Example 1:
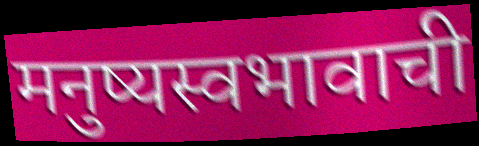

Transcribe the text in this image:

मनुष्यस्वभावाची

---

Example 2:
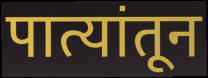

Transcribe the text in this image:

पात्यांतून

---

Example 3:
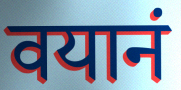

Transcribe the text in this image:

वयानं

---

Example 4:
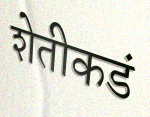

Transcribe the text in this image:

शेतीकडं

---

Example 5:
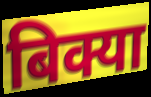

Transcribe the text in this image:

बिक्या